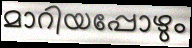
മാറിയപ്പോഴും